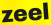
zeel